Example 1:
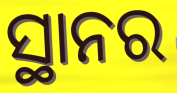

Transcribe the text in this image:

ସ୍ଥାନର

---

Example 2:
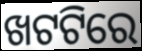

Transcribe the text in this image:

ଖଟଟିରେ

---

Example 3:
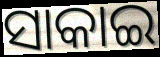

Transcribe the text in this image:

ସାକାଇ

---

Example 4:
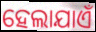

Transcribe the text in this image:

ହେଲାଯାଏଁ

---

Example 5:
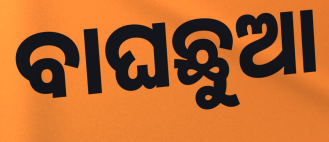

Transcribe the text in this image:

ବାଘଛୁଆ